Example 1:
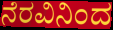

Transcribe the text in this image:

ನೆರವಿನಿಂದ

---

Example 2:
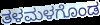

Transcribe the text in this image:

ತಳಮಳಗೊಂಡ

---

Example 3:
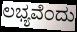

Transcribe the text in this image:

ಲಭ್ಯವೆಂದು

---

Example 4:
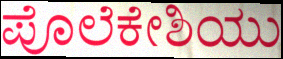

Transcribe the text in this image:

ಪೊಲೆಕೇಶಿಯು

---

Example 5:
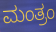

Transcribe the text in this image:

ಮಂತ್ರಂ